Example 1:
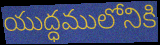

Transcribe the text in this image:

యుద్ధములోనికి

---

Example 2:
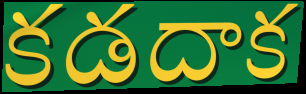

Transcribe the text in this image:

కడదాక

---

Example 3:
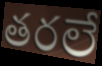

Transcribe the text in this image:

తరలే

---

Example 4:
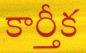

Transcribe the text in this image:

కార్తీక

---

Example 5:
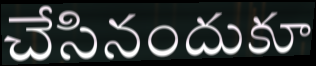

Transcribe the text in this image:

చేసినందుకూ